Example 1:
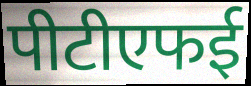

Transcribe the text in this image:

पीटीएफई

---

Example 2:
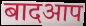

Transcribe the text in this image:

बादआप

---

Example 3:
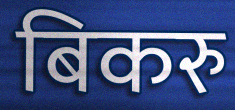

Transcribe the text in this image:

बिकरु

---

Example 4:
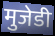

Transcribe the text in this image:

मुजेडी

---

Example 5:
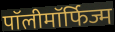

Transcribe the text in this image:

पॉलीमॉर्फिज्म